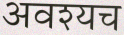
अवश्यच